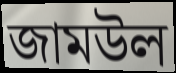
জামউল